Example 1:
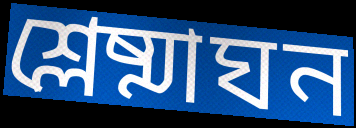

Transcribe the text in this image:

শ্লেষ্মাঘন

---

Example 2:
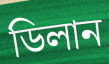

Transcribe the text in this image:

ডিলান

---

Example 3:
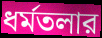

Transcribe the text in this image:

ধর্মতলার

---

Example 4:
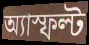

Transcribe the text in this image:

অ্যাস্ফল্ট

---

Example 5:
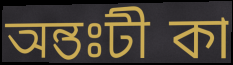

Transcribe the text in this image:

অন্তঃটীকা